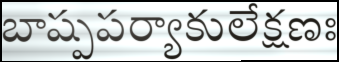
బాష్పపర్యాకులేక్షణః